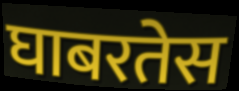
घाबरतेस